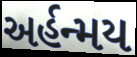
અર્હન્મય